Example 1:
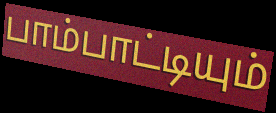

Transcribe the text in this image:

பாம்பாட்டியும்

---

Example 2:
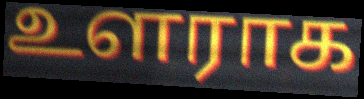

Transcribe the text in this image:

உளராக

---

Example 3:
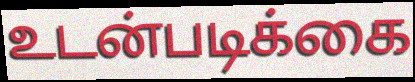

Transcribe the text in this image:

உடன்படிக்கை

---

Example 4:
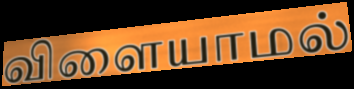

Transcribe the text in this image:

விளையாமல்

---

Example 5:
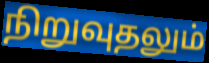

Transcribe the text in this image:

நிறுவுதலும்